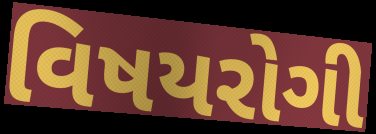
વિષયરોગી